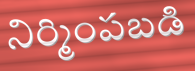
నిర్మింపబడి